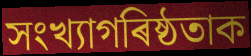
সংখ্যাগৰিষ্ঠতাক